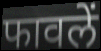
फावलें